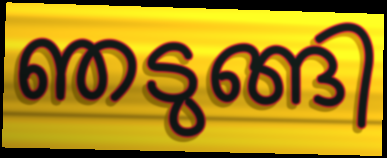
ഞടുങ്ങി